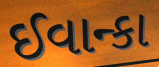
ઈવાન્કા